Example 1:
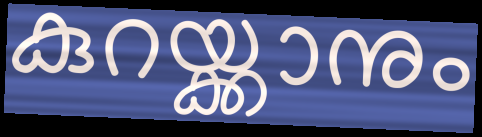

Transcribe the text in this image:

കുറയ്ക്കാനും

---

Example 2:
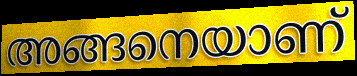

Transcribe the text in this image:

അങ്ങനെയാണ്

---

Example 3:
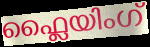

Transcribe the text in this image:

ഫ്ലൈയിംഗ്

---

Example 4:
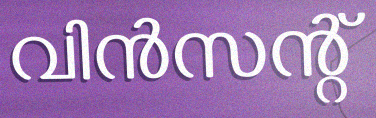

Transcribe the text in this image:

വിൻസന്റ്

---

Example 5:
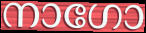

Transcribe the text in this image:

നാഗോ